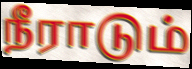
நீராடும்